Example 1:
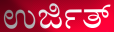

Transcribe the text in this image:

ಉರ್ಜಿತ್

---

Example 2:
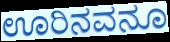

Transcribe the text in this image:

ಊರಿನವನೂ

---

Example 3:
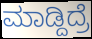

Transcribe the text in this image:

ಮಾಡ್ದಿದ್ರೆ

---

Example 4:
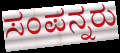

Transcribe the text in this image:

ಸಂಪನ್ನರು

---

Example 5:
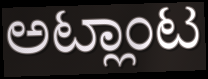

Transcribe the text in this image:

ಅಟ್ಲಾಂಟ